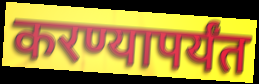
करण्यापर्यंत